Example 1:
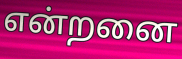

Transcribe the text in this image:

என்றனை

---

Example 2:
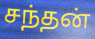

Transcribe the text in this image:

சந்தன்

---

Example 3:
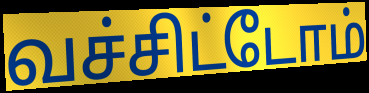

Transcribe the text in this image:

வச்சிட்டோம்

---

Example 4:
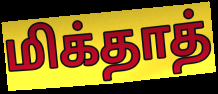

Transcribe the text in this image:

மிக்தாத்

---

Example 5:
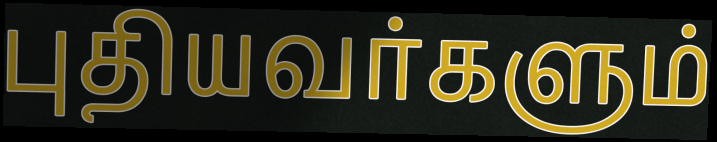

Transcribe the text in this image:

புதியவர்களும்